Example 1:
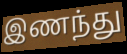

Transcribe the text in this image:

இணந்து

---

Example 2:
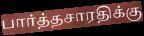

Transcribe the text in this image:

பார்த்தசாரதிக்கு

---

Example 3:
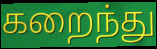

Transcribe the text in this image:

கறைந்து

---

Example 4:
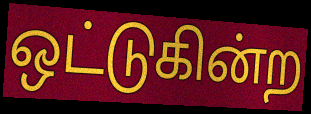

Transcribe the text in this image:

ஒட்டுகின்ற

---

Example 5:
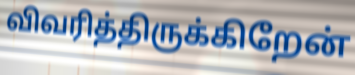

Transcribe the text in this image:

விவரித்திருக்கிறேன்